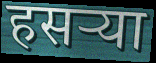
हसऱ्या